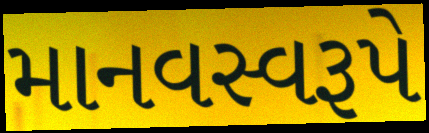
માનવસ્વરૂપે